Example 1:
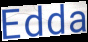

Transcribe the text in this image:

Edda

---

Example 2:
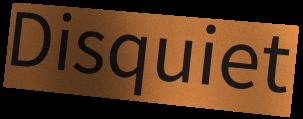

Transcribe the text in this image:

Disquiet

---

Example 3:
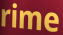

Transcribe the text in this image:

rime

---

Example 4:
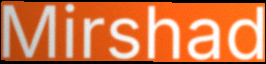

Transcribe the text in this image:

Mirshad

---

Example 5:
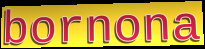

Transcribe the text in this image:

bornona